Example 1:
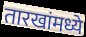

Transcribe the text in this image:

तारखांमध्ये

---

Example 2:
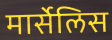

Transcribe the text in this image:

मार्सेलिस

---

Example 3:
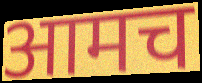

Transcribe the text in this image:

आमच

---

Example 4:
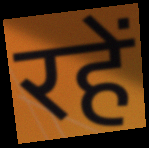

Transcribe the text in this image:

रहें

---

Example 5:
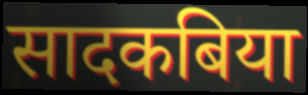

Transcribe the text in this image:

सादकबिया